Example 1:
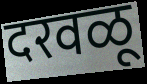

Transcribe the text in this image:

दरवळू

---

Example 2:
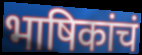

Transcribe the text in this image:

भाषिकांचं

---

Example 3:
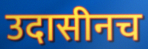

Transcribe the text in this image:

उदासीनच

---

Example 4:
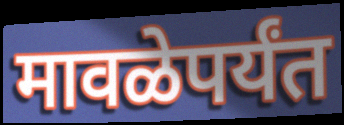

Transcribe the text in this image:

मावळेपर्यंत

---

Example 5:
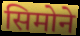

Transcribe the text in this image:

सिमोने